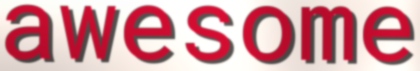
awesome